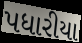
પધારીયા